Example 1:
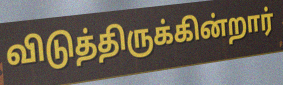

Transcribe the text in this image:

விடுத்திருக்கின்றார்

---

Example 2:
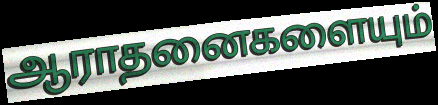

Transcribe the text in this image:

ஆராதனைகளையும்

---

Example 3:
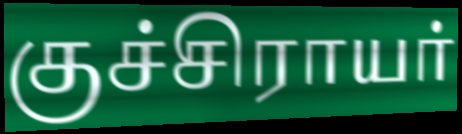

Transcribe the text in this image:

குச்சிராயர்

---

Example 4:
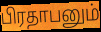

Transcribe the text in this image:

பிரதாபனும்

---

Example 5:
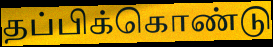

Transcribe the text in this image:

தப்பிக்கொண்டு